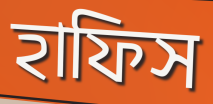
হাফিস